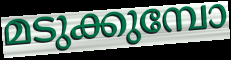
മടുക്കുമ്പോ